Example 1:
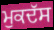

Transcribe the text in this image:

ਮੁਕਦੱਸ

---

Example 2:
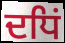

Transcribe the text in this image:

ਦਧਿਂ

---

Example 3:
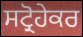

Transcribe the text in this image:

ਸਟ੍ਰੋਹੇਕਰ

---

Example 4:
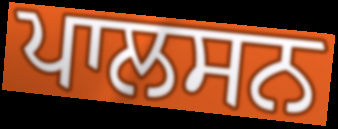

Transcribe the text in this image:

ਪਾਲਸਨ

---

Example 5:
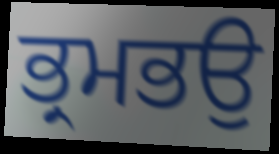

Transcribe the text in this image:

ਭ੍ਰਮਭਉ